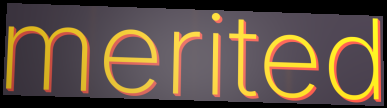
merited